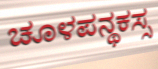
ಚೂಳಪನ್ಥಕಸ್ಸ